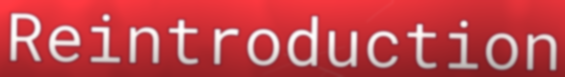
Reintroduction